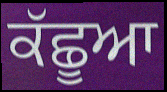
ਕੱਛੂਆ